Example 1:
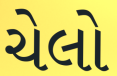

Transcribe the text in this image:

ચેલો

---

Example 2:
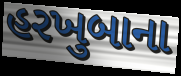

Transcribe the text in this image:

હરખુબાના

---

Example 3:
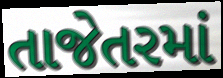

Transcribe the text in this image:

તાજેતરમાં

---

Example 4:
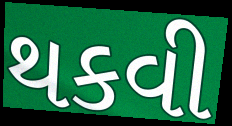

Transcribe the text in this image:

થકવી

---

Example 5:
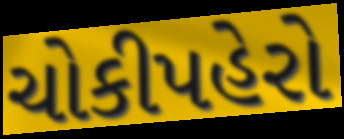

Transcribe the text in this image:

ચોકીપહેરો